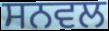
ਸਨਵਲ